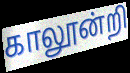
காலூன்றி